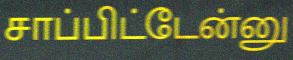
சாப்பிட்டேன்னு